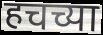
हचच्या